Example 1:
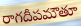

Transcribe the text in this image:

రాగదీపమౌతూ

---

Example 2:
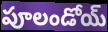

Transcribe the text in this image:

పూలండోయ్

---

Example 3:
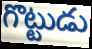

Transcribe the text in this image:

గొట్టుడు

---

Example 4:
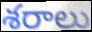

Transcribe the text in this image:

శరాలు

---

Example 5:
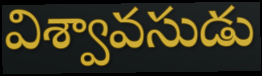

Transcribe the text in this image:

విశ్వావసుడు